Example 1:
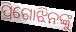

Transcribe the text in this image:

ପ୍ରିଗୋଝିନଙ୍କୁ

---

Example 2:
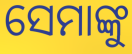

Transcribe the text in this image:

ସେମାଙ୍କୁ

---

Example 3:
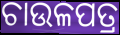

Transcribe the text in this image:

ଚାଉଳପତ୍ର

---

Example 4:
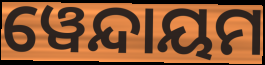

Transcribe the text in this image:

ୱେନ୍ଦାୟମ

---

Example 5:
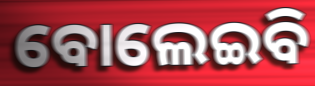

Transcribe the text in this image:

ବୋଲେଇବି